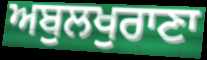
ਅਬੁਲਖੁਰਾਣਾ